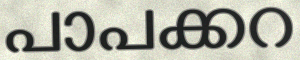
പാപക്കറ